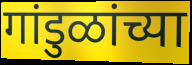
गांडुळांच्या